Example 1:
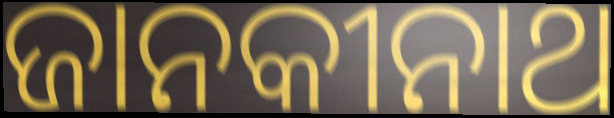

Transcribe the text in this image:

ଜାନକୀନାଥ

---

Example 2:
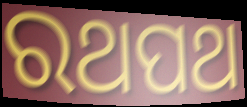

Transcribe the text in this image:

ରଥପଥ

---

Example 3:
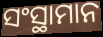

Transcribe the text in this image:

ସଂସ୍ଥାମାନ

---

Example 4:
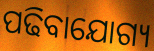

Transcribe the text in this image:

ପଢିବାଯୋଗ୍ୟ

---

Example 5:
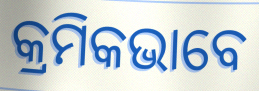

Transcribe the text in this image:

କ୍ରମିକଭାବେ